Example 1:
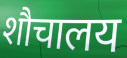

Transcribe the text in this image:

शौचालय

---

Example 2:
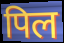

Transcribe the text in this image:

पिल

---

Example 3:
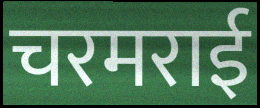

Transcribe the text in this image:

चरमराई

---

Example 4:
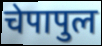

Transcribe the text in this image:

चेपापुल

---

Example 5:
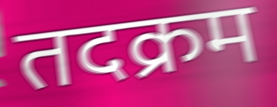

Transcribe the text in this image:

तदक्रम